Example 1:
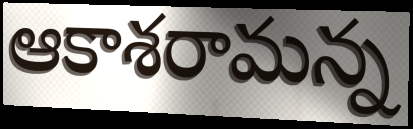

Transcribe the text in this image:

ఆకాశరామన్న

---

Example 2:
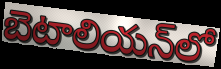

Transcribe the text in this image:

బెటాలియన్‌లో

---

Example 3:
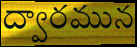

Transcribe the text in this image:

ద్వారమున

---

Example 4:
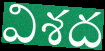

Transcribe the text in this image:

విశద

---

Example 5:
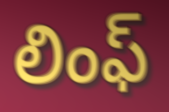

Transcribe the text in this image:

లింఫ్